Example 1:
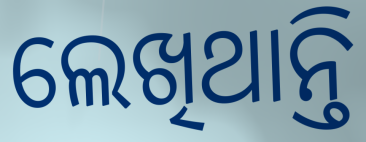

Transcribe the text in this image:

ଲେଖିଥାନ୍ତି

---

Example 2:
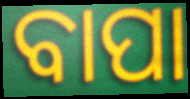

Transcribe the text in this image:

ବାପା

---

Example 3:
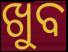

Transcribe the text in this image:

ଖୁବ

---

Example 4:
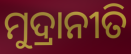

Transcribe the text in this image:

ମୁଦ୍ରାନୀତି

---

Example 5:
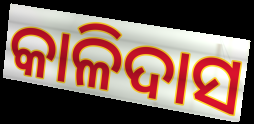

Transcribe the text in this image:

କାଳିଦାସ